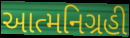
આત્મનિગ્રહી